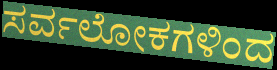
ಸರ್ವಲೋಕಗಳಿಂದ